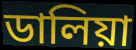
ডালিয়া